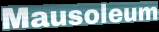
Mausoleum